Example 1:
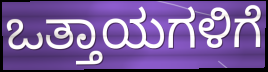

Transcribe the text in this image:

ಒತ್ತಾಯಗಳಿಗೆ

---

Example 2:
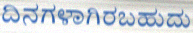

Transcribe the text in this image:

ದಿನಗಳಾಗಿರಬಹುದು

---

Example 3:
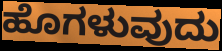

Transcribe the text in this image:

ಹೊಗಳುವುದು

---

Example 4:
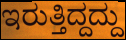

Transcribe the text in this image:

ಇರುತ್ತಿದ್ದದ್ದು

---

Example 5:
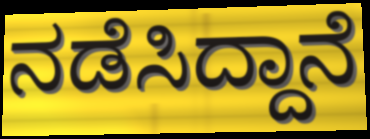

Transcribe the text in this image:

ನಡೆಸಿದ್ದಾನೆ